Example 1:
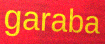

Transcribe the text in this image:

garaba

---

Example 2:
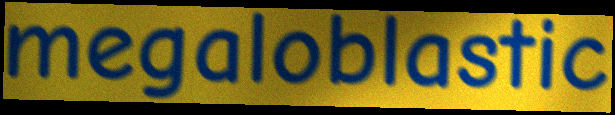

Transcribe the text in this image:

megaloblastic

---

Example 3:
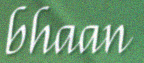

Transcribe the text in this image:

bhaan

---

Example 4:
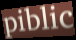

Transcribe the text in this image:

piblic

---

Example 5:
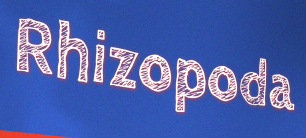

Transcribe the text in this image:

Rhizopoda